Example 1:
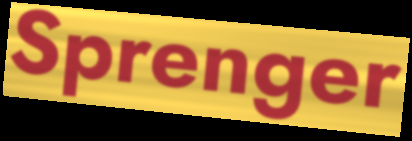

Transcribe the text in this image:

Sprenger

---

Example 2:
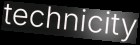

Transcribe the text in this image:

technicity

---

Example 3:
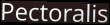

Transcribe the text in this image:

Pectoralis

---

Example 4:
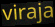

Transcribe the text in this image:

viraja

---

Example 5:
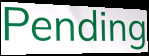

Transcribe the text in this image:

Pending